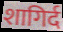
शागिर्द